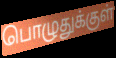
பொழுதுக்குள்